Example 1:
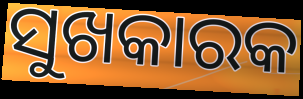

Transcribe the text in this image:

ସୁଖକାରକ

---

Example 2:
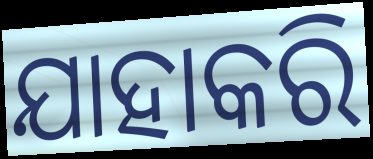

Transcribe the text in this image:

ଯାହାକରି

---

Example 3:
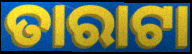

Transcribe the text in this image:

ତାରାଟା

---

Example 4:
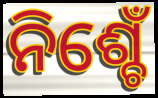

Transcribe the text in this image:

ନିଶ୍ଚେଁ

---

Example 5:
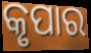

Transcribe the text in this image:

କୃପାର